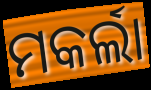
ମକର୍ଲା